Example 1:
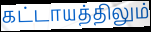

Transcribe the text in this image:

கட்டாயத்திலும்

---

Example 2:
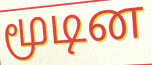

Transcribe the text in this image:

மூடின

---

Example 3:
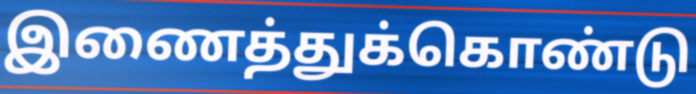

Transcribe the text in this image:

இணைத்துக்கொண்டு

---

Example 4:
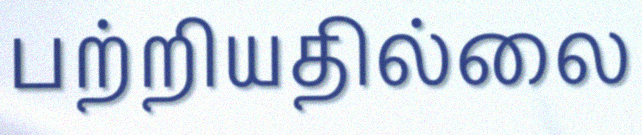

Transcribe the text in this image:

பற்றியதில்லை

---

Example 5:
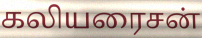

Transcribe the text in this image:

கலியரைசன்